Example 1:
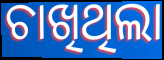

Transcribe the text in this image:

ଚାଖିଥିଲା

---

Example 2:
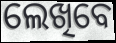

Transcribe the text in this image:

ଲେଖିବେ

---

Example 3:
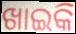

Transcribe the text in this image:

ଖାଇକି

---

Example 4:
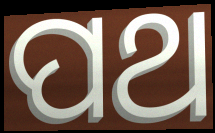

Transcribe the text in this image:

ପଥ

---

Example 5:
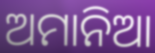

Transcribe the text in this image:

ଅମାନିଆ